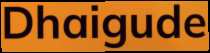
Dhaigude